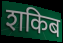
शकिब